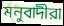
মনুবাদীরা